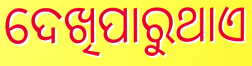
ଦେଖିପାରୁଥାଏ